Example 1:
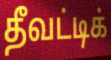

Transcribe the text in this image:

தீவட்டிக்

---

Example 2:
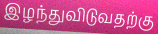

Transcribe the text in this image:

இழந்துவிடுவதற்கு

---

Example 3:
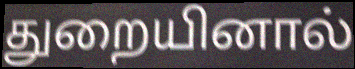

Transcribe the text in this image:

துறையினால்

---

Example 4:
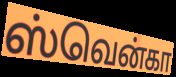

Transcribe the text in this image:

ஸ்வென்கா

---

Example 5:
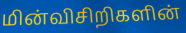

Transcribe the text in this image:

மின்விசிறிகளின்